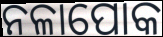
ନଳାପୋକ